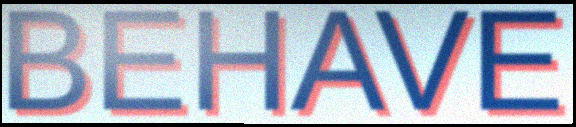
BEHAVE